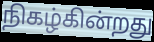
நிகழ்கின்றது